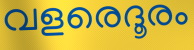
വളരെദൂരം